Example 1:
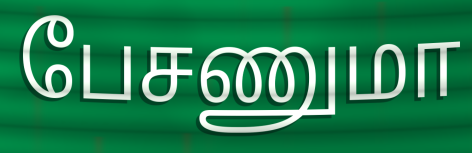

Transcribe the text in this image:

பேசணுமா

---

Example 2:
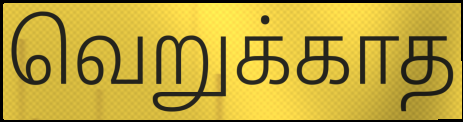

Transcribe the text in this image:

வெறுக்காத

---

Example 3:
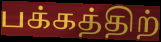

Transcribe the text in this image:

பக்கத்திற்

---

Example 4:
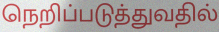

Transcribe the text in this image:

நெறிப்படுத்துவதில்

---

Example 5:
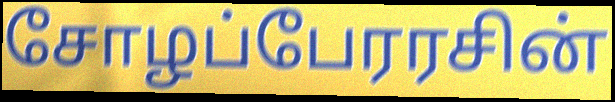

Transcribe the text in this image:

சோழப்பேரரசின்